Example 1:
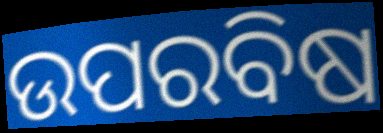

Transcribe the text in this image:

ଉପରବିଷ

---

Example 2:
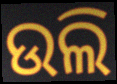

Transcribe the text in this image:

ଉଲି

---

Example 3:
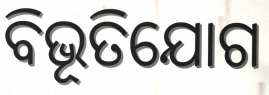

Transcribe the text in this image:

ବିଭୂତିଯୋଗ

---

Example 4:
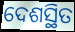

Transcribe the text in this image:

ଦେଶସ୍ଥିତ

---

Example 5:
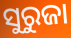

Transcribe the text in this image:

ସୁରୁଜା